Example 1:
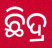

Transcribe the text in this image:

ଛିଦ୍ର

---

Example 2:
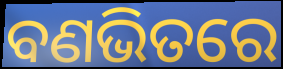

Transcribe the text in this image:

ବଣଭିତରେ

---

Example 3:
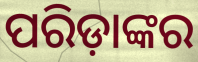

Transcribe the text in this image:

ପରିଡ଼ାଙ୍କର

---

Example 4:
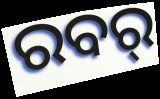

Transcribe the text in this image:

ରବର୍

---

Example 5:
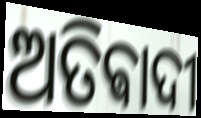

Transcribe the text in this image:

ଅତିଵାଦୀ